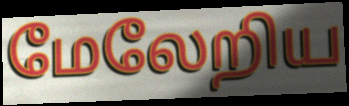
மேலேறிய